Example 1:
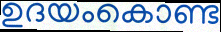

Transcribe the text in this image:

ഉദയംകൊണ്ട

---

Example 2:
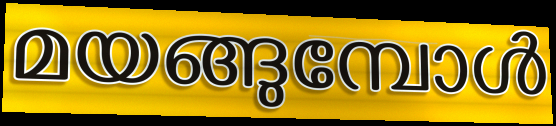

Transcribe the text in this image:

മയങ്ങുമ്പോൾ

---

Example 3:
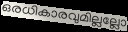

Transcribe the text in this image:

ഒരധികാരവുമില്ലല്ലോ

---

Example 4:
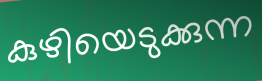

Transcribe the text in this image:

കുഴിയെടുക്കുന്ന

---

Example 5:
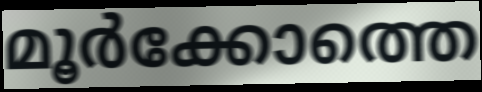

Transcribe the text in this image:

മൂർക്കോത്തെ